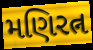
મણિરત્ન